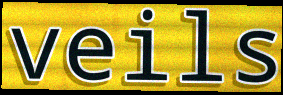
veils